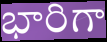
భారిగా